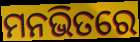
ମନଭିତରେ